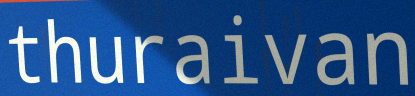
thuraivan